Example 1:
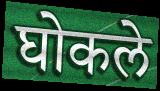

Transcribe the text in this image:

घोकले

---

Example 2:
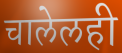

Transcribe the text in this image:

चालेलही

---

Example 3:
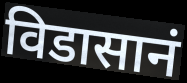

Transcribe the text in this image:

विडासानं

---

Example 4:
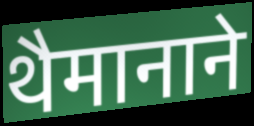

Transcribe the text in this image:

थैमानाने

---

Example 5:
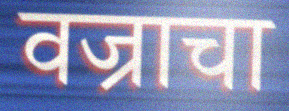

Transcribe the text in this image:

वज्राचा